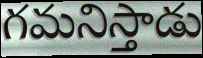
గమనిస్తాడు